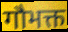
गौभक्त